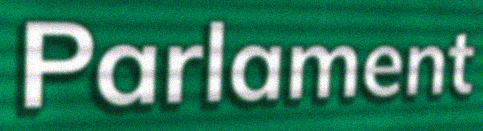
Parlament